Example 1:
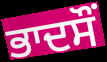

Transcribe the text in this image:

ਭਾਦਸੌਂ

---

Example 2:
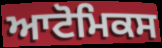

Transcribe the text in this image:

ਆਟੋਮਿਕਸ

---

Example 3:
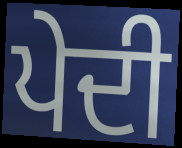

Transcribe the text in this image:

ਪੇਦੀ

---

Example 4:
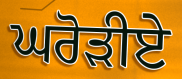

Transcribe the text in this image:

ਘਰੋੜੀਏ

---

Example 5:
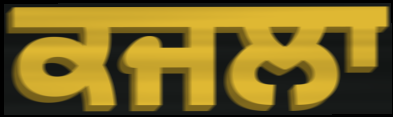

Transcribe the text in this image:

ਕਜਲਾ